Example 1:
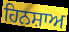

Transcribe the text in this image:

ਹਿਨਸ਼ਾਅ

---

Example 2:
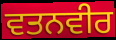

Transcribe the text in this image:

ਵਤਨਵੀਰ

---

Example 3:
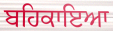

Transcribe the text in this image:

ਬਹਿਕਾਇਆ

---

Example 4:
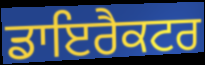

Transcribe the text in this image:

ਡਾਇਰੈਕਟਰ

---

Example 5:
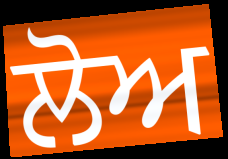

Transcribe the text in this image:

ਲੋਅ